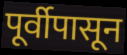
पूर्वीपासून